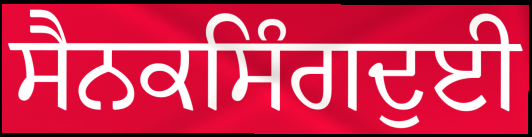
ਸੈਨਕਸਿੰਗਦੁਈ